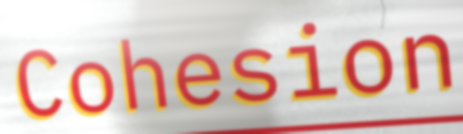
Cohesion